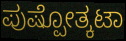
ಪುಷ್ಪೋತ್ಕಟಾ